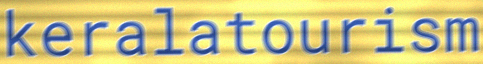
keralatourism